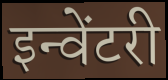
इन्वेंटरी